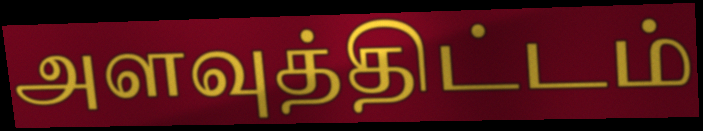
அளவுத்திட்டம்